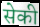
सेकी